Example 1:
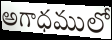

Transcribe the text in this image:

అగాధములో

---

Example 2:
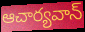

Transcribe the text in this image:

ఆచార్యవాన్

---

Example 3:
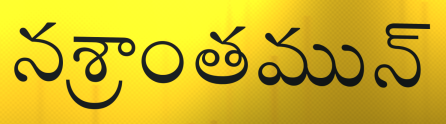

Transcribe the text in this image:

నశ్రాంతమున్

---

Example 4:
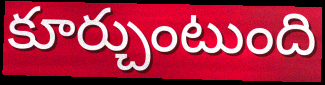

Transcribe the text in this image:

కూర్చుంటుంది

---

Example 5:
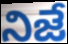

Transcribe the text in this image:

నిజే